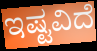
ಇಷ್ಟವಿದೆ